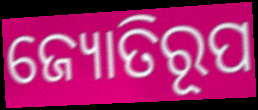
ଜ୍ୟୋତିରୂପ